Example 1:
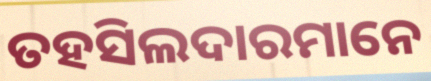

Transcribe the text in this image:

ତହସିଲଦାରମାନେ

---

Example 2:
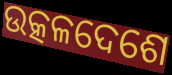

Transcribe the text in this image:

ଉତ୍କଳଦେଶେ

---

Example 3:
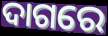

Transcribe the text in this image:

ଦାଗରେ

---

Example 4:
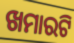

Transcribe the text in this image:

ଖମାରଟି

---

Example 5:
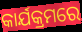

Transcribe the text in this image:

କାର୍ଯକ୍ରମରେ